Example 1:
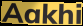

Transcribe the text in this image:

Aakhi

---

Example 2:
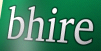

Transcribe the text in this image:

bhire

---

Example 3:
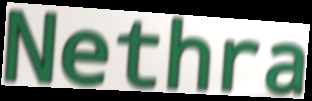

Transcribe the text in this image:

Nethra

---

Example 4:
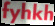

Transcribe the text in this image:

fyhkh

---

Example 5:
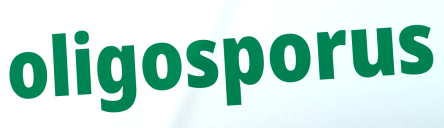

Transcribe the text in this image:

oligosporus